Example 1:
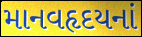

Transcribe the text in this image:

માનવહૃદયનાં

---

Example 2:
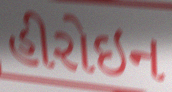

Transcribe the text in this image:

હીરોઇન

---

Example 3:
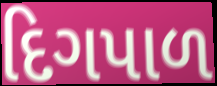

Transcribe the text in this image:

દિગપાળ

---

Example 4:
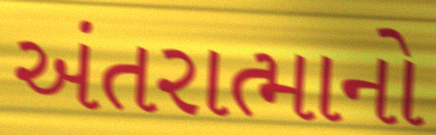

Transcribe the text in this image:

અંતરાત્માનો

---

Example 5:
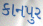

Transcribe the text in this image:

કાનપુર